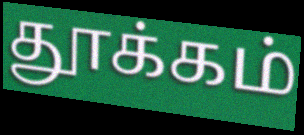
தூக்கம்